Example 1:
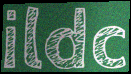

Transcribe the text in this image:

ildc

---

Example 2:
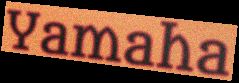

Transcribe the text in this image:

Yamaha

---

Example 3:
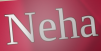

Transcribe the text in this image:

Neha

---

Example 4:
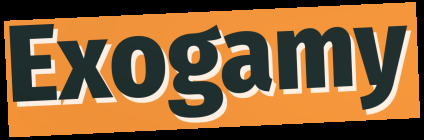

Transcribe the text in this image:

Exogamy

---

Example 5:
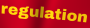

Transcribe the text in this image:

regulation